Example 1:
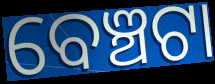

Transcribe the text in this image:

ବେଞ୍ଚଟା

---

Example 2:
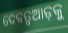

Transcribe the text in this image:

ଦେବତ୍ୱଆଡ଼କୁ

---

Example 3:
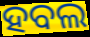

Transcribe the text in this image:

ହବଲ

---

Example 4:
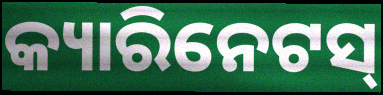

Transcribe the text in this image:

କ୍ୟାରିନେଟସ୍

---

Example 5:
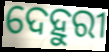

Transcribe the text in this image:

ଦେହୁରୀ